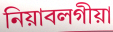
নিয়াবলগীয়া